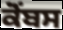
ਕੋਂਬਸ